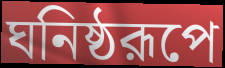
ঘনিষ্ঠরূপে